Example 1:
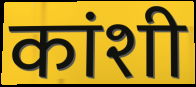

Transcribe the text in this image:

कांशी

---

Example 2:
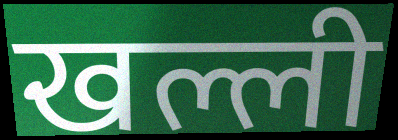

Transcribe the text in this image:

खल्ली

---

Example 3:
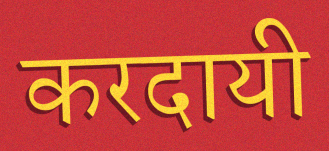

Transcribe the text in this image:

करदायी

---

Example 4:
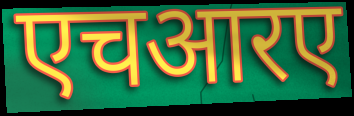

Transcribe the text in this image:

एचआरए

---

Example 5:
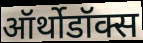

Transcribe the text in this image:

ऑर्थोडॉक्स